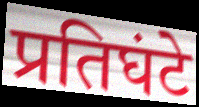
प्रतिघंटे